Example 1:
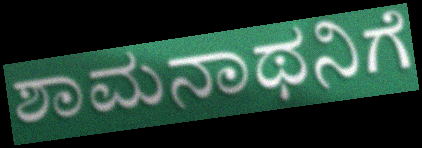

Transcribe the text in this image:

ಶಾಮನಾಥನಿಗೆ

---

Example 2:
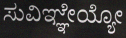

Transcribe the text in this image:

ಸುವಿಞ್ಞೇಯ್ಯೋ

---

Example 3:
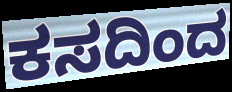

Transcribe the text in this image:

ಕಸದಿಂದ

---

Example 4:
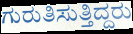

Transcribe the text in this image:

ಗುರುತಿಸುತ್ತಿದ್ದರು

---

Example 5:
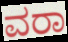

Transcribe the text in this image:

ವರಾ